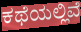
ಕಥೆಯಲ್ಲಿವೆ